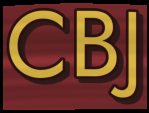
CBJ